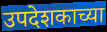
उपदेशकाच्या